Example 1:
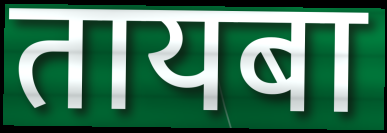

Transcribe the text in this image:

तायबा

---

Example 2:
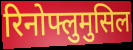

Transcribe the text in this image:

रिनोफ्लुमुसिल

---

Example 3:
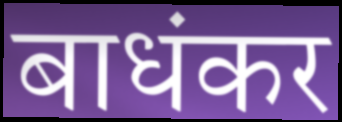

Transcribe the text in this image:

बाधंकर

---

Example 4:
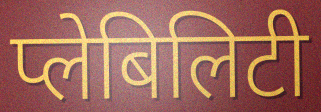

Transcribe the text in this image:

प्लेबिलिटी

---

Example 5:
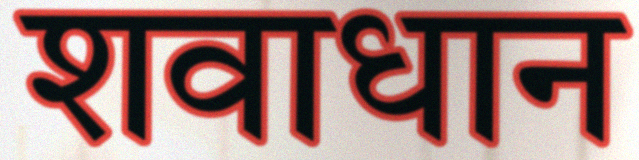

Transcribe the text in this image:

शवाधान